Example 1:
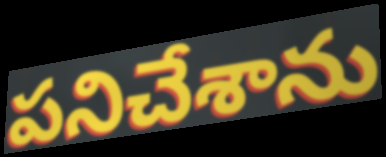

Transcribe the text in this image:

పనిచేశాను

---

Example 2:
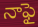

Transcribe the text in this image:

నాఫై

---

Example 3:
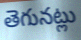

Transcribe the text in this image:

తెగునట్లు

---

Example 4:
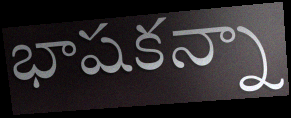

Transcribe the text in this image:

భాషకన్నా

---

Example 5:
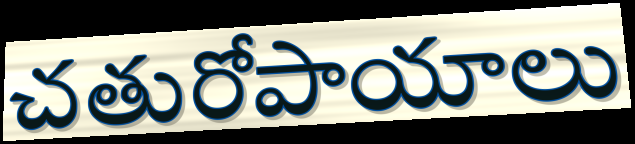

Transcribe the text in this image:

చతురోపాయాలు